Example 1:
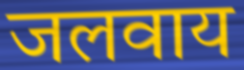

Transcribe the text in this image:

जलवाय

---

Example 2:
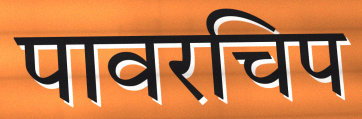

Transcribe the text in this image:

पावरचिप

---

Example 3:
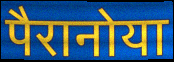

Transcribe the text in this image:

पैरानोया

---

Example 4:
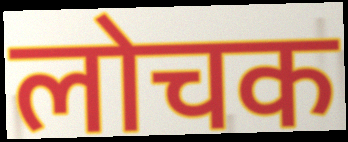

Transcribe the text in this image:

लोचक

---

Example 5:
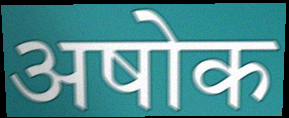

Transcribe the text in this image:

अषोक